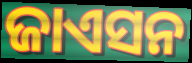
ଜାଏସନ